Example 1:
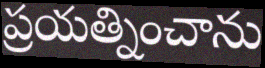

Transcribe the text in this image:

ప్రయత్నించాను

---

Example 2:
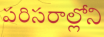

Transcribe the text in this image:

పరిసరాల్లోని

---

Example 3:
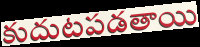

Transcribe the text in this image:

కుదుటపడతాయి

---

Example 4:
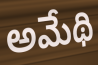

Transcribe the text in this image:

అమేథి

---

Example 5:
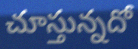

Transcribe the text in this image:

చూస్తున్నదో